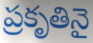
ప్రకృతినై